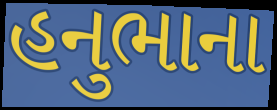
હનુભાના